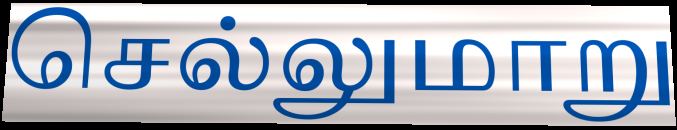
செல்லுமாறு